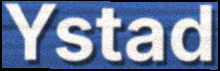
Ystad